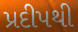
પ્રદીપથી